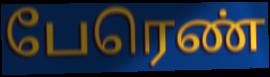
பேரெண்